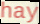
hay